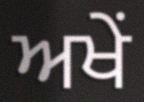
ਅਖੇਂ